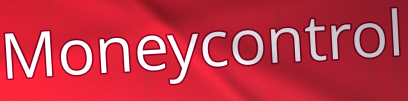
Moneycontrol